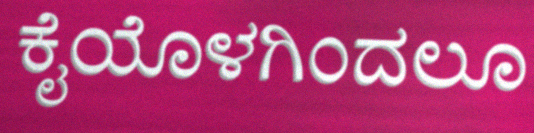
ಕೈಯೊಳಗಿಂದಲೂ